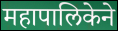
महापालिकेने